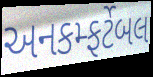
અનકમ્ફર્ટેબલ